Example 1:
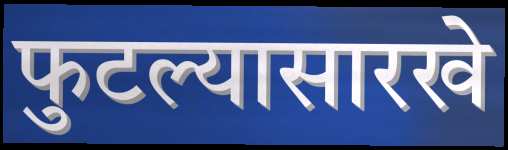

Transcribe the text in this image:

फुटल्यासारखे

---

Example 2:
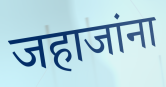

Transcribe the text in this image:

जहाजांना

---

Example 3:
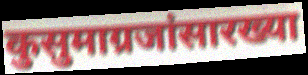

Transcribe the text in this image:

कुसुमाग्रजांसारख्या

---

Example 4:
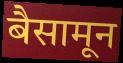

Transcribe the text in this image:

बैसामून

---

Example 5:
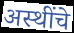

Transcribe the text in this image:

अस्थींचे